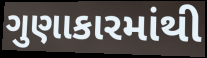
ગુણાકારમાંથી